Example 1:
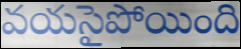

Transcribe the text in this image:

వయసైపోయింది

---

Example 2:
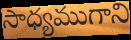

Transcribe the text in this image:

సాధ్యముగాని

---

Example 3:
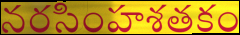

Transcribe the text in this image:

నరసింహశతకం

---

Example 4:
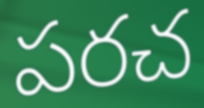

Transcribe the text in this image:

పరచ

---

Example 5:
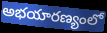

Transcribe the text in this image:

అభయారణ్యంలో